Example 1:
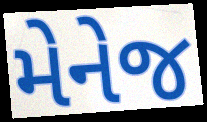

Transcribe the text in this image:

મેનેજ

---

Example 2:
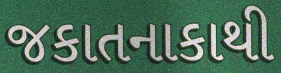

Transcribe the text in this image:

જકાતનાકાથી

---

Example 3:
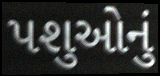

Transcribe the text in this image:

પશુઓનું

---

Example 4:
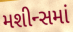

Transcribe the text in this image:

મશીન્સમાં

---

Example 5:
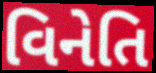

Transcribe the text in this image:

વિનેતિ